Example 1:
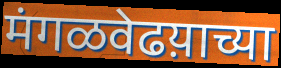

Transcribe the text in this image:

मंगळवेढय़ाच्या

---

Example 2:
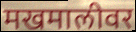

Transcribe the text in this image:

मखमालीवर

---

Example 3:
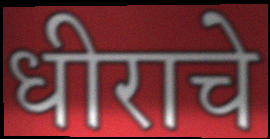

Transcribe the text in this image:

धीराचे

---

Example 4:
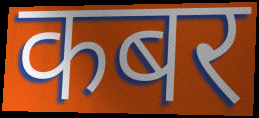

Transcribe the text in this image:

कबर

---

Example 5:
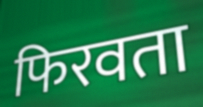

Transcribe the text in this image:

फिरवता